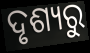
ଦୃଶ୍ୟରୁ